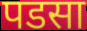
पडसा